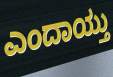
ಎಂದಾಯ್ತು